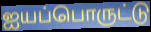
ஐயப்பொருட்டு